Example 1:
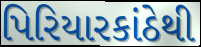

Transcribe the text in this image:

પિરિયારકાંઠેથી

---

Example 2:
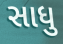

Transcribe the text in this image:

સાધુ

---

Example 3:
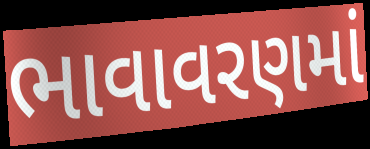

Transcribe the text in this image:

ભાવાવરણમાં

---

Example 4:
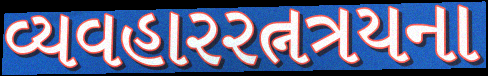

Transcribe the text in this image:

વ્યવહારરત્નત્રયના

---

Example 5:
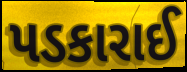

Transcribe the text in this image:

પડકારાઈ